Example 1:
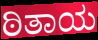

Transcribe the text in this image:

ಠಿತಾಯ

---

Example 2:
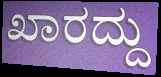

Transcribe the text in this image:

ಖಾರದ್ದು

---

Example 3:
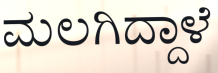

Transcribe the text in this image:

ಮಲಗಿದ್ದಾಳೆ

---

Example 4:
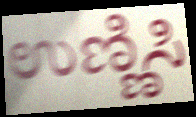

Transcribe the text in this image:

ಉಣ್ಣಿಸಿ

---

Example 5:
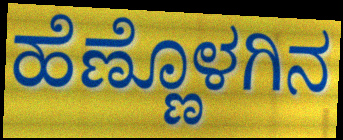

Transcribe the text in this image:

ಹೆಣ್ಣೊಳಗಿನ